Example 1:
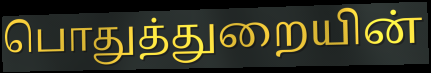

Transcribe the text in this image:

பொதுத்துறையின்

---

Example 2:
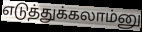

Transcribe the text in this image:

எடுத்துக்கலாம்னு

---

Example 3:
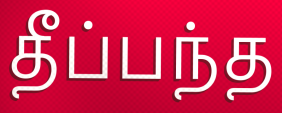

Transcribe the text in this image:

தீப்பந்த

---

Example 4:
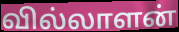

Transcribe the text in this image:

வில்லாளன்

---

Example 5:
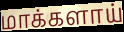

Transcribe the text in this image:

மாக்களாய்